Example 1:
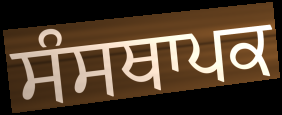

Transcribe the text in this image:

ਸੰਸਥਾਪਕ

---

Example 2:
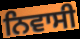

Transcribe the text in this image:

ਨਿਵਾਸੀ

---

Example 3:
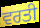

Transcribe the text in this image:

ਵਰਤੀ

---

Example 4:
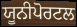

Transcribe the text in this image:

ਯੂਨੀਪੋਰਟਲ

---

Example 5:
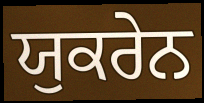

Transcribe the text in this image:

ਯੁਕਰੇਨ